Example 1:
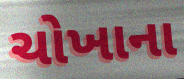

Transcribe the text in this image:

ચોખાના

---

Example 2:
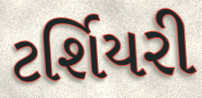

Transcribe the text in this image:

ટર્શિયરી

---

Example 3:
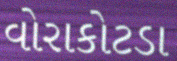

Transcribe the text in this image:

વોરાકોટડા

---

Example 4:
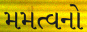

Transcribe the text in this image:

મમત્વનો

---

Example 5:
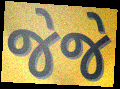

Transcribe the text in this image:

જેજે